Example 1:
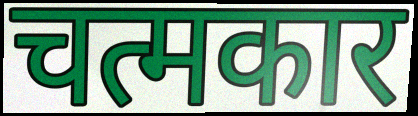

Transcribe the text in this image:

चत्मकार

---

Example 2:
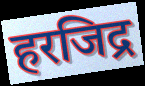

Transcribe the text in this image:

हरजिद्र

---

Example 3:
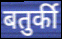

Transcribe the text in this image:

बतुर्की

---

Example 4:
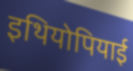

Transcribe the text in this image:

इथियोपियाई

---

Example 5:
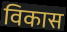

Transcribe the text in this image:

विकास